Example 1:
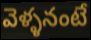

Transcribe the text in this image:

వెళ్ళనంటే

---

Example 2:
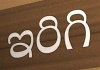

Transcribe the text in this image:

ఇరిగి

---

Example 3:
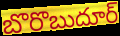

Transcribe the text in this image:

బొరొబుదూర్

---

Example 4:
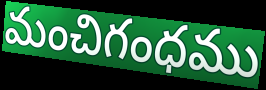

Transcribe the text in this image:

మంచిగంధము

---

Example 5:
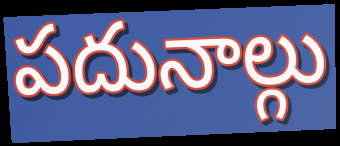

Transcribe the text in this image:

పదునాల్గు